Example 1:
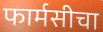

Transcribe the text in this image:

फार्मसीचा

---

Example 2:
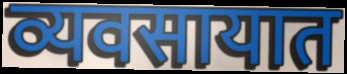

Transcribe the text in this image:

व्यवसायात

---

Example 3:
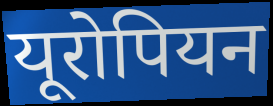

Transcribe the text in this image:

यूरोपियन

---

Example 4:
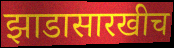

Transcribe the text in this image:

झाडासारखीच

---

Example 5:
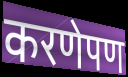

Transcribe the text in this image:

करणेपण